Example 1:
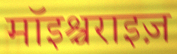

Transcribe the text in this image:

मॉइश्चराइज़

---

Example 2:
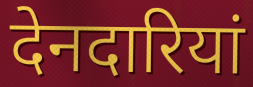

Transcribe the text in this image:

देनदारियां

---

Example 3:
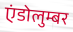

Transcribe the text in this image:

एंडोलुम्बर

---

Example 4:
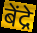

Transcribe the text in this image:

बेंद्रे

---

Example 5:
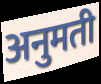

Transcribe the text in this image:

अनुमती